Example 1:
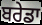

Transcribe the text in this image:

ਬਰੇਡਾ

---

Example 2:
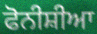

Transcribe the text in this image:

ਫੋਨੀਸ਼ੀਆ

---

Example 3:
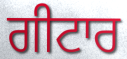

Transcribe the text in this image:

ਗੀਟਾਰ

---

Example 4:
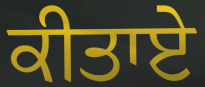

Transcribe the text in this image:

ਕੀਤਾਏ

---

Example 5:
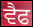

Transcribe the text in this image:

ਵੈਫ